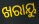
ଖରାୟୁ